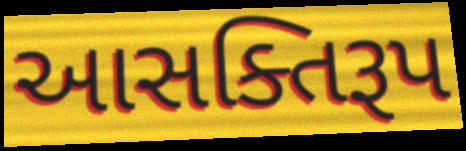
આસક્તિરૂપ